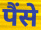
पैंसे